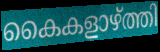
കൈകളാഴ്ത്തി